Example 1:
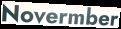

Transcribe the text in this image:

Novermber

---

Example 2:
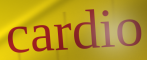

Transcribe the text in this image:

cardio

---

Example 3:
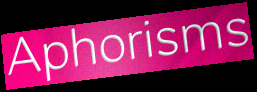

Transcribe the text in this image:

Aphorisms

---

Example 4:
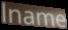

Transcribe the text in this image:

lname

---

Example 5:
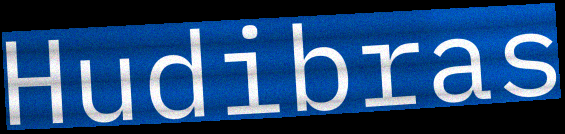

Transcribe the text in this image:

Hudibras